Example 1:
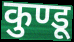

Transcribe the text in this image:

कुण्डू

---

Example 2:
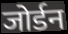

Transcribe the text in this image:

जोर्डन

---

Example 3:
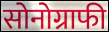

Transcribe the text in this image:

सोनोग्राफी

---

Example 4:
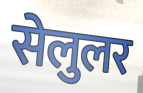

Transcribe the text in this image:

सेलुलर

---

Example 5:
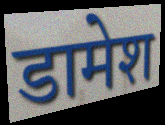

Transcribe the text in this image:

डामेश